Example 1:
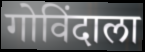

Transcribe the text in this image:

गोविंदाला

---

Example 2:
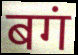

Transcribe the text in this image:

बगं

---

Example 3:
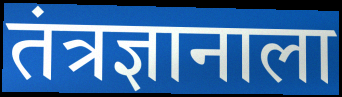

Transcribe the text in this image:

तंत्रज्ञानाला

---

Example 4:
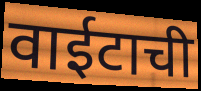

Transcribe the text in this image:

वाईटाची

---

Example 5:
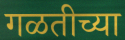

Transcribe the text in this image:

गळतीच्या